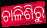
ଚାଳିଶିରୁ